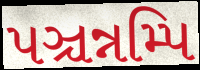
પઞ્ચન્નમ્પિ